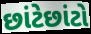
છાંટેછાંટો